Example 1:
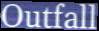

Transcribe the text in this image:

Outfall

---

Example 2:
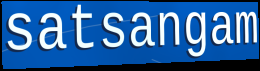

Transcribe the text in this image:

satsangam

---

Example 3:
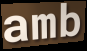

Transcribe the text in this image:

amb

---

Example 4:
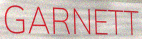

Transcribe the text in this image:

GARNETT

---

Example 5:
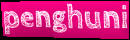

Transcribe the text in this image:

penghuni